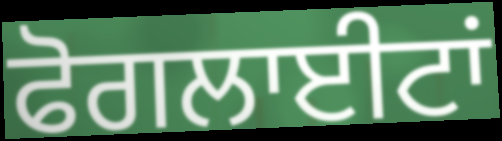
ਫੋਗਲਾਈਟਾਂ